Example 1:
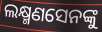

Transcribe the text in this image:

ଲକ୍ଷ୍ମଣସେନଙ୍କୁ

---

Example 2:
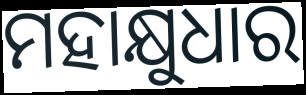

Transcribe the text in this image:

ମହାକ୍ଷୁଧାର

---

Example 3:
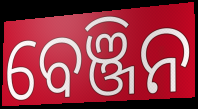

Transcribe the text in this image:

ବେଞ୍ଜିନ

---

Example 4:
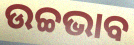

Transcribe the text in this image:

ଉଚ୍ଚଭାବ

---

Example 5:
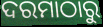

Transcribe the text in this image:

ଦରମାଠାରୁ